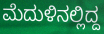
ಮೆದುಳಿನಲ್ಲಿದ್ದ